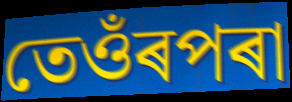
তেওঁৰপৰা